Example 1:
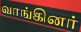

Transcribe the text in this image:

வாங்கினர்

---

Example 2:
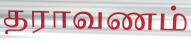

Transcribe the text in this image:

தராவணம்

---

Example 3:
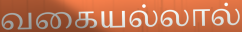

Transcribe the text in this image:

வகையல்லால்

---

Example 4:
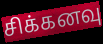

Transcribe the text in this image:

சிக்கனவு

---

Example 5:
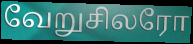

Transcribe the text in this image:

வேறுசிலரோ